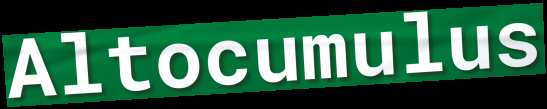
Altocumulus